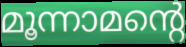
മൂന്നാമന്റെ